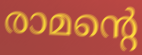
രാമന്റെ